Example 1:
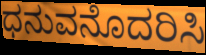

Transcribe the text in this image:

ಧನುವನೊದರಿಸಿ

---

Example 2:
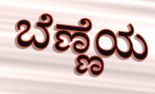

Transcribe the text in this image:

ಬೆಣ್ಣೆಯ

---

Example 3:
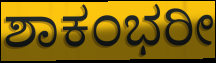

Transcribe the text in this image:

ಶಾಕಂಭರೀ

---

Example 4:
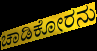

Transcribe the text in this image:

ಚಾಡಿಕೋರನು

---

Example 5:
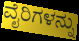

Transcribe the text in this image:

ವೈರಿಗಳನ್ನು